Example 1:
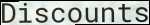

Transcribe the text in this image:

Discounts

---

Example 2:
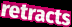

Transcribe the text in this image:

retracts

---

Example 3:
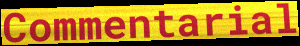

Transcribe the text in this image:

Commentarial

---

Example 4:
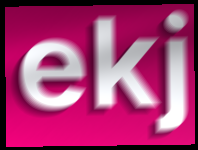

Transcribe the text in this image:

ekj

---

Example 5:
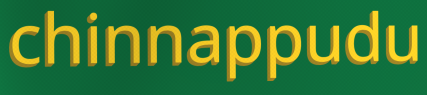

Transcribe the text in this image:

chinnappudu